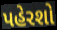
પહેરશો